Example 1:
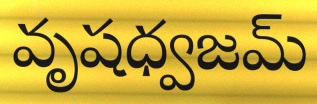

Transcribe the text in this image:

వృషధ్వజమ్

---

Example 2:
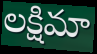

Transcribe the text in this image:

లక్షిమా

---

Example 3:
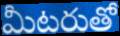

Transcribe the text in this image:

మీటరుతో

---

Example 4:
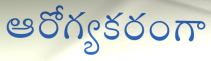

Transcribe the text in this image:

ఆరోగ్యకరంగా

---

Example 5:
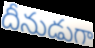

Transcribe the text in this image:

దీనుడుగా